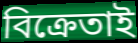
বিক্ৰেতাই